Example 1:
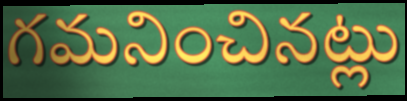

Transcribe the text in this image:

గమనించినట్లు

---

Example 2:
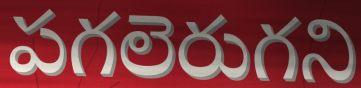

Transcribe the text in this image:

పగలెరుగని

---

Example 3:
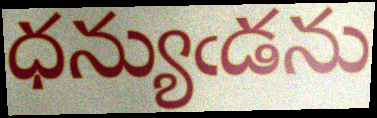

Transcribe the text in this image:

ధన్యుఁడను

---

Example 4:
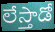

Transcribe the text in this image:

లేస్తాడో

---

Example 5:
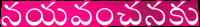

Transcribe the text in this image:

నయవంచనకు